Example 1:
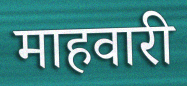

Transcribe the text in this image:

माहवारी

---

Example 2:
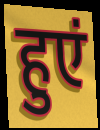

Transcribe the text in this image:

हुएं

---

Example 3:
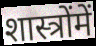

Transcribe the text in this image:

शास्त्रोंमें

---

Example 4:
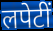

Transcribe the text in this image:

लपेटीं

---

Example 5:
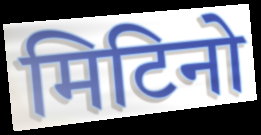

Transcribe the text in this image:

मिटिनो